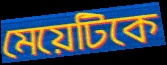
মেয়েটিকে